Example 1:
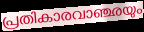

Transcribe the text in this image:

പ്രതികാരവാഞ്ഛയും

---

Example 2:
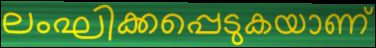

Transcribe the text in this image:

ലംഘിക്കപ്പെടുകയാണ്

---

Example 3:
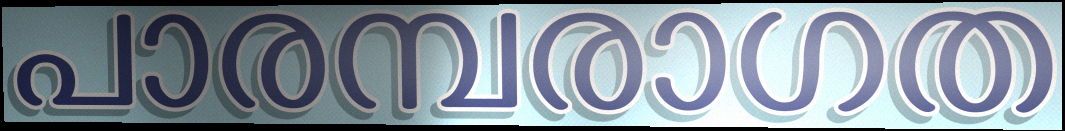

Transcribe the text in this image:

പാരമ്പരാഗത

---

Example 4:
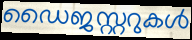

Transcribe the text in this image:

ഡൈജസ്റ്ററുകൾ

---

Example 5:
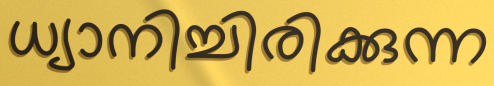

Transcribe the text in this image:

ധ്യാനിച്ചിരിക്കുന്ന